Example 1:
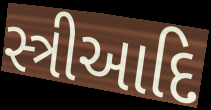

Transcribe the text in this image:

સ્ત્રીઆદિ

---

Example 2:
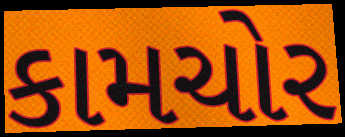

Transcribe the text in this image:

કામચોર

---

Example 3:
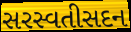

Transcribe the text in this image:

સરસ્વતીસદન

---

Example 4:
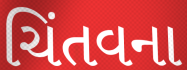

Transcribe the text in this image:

ચિંતવના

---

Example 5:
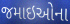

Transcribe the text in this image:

જમાઇઓના